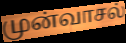
முன்வாசல்